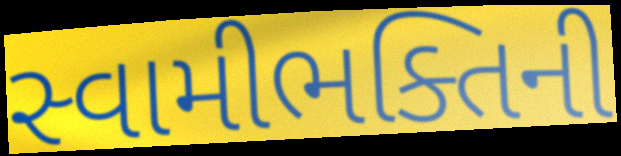
સ્વામીભક્તિની